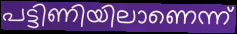
പട്ടിണിയിലാണെന്ന്